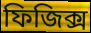
ফিজিক্স